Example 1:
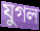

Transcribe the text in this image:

যুগল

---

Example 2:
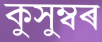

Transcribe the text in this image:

কুসুম্বৰ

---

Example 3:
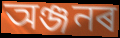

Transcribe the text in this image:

অঞ্জনৰ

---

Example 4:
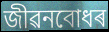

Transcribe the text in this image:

জীৱনবোধৰ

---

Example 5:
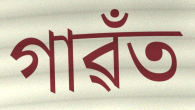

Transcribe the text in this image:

গাৱঁত